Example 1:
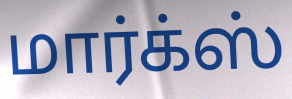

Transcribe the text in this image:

மார்க்ஸ்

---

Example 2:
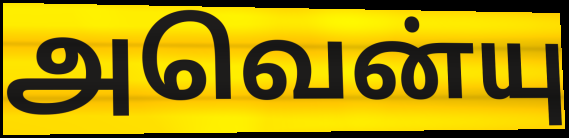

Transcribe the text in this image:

அவென்யு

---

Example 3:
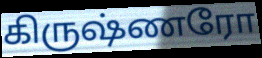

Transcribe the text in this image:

கிருஷ்ணரோ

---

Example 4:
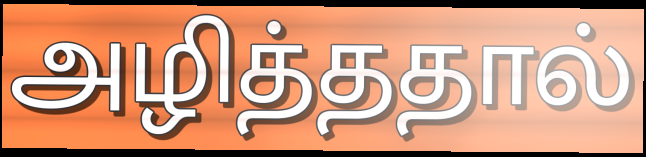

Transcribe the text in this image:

அழித்ததால்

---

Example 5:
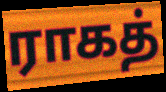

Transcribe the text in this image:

ராகத்